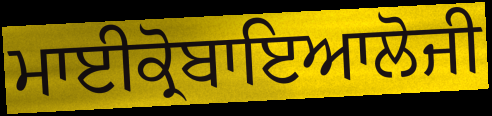
ਮਾਈਕ੍ਰੋਬਾਇਆਲੋਜੀ